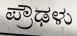
ಪ್ರೌಢಳು